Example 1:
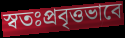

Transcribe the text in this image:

স্বতঃপ্রবৃত্তভাবে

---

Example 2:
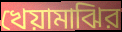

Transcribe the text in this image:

খেয়ামাঝির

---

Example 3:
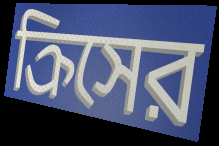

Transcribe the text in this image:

ক্রিসের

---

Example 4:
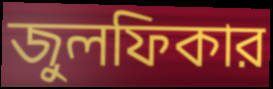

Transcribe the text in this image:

জুলফিকার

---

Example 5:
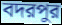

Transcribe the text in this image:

বদরপুর